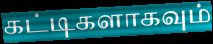
கட்டிகளாகவும்